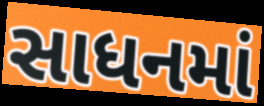
સાધનમાં